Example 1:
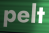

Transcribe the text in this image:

pelt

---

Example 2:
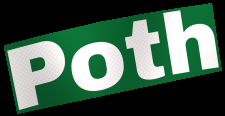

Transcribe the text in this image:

Poth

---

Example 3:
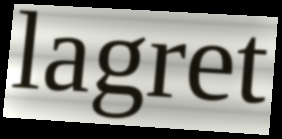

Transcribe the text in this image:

lagret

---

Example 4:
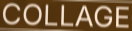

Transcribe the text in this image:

COLLAGE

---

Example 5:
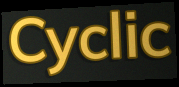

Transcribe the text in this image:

Cyclic